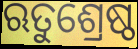
ଋତୁଶ୍ରେଷ୍ଠ